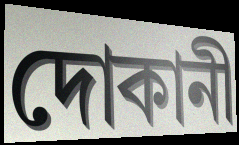
দোকানী